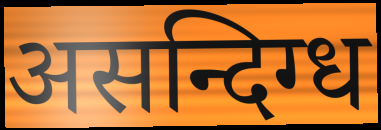
असन्दिग्ध